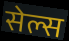
सेल्स